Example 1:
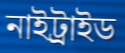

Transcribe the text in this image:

নাইট্রাইড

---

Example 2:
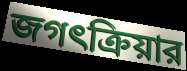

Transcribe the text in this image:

জগৎক্রিয়ার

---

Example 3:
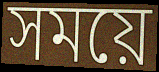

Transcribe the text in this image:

সময়ে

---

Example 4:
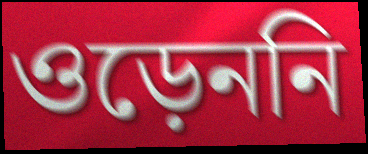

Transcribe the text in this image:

ওড়েননি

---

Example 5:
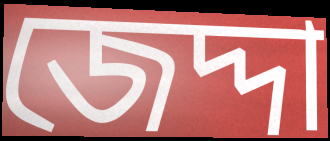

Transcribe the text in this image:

জেদ্দা